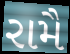
રામૈ